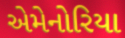
એમેનોરિયા